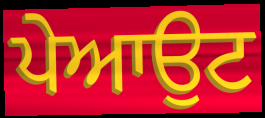
ਪੇਆਉਟ